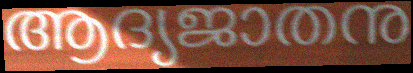
ആദ്യജാതനു